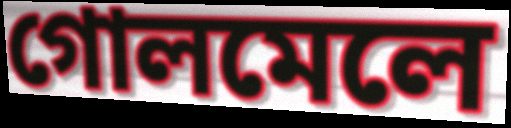
গোলমেলে